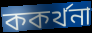
ককৰ্থনা